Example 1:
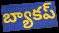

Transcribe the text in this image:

బ్యాకప్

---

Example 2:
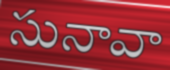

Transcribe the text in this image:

సునావా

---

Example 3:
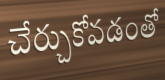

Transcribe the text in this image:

చేర్చుకోవడంతో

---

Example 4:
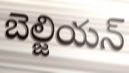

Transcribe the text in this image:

బెల్జియన్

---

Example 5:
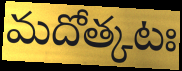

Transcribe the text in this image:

మదోత్కటః